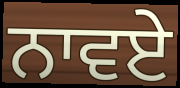
ਨਾਵਏ